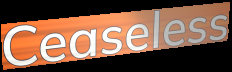
Ceaseless